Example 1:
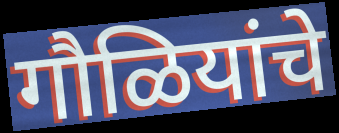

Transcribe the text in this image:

गौळियांचे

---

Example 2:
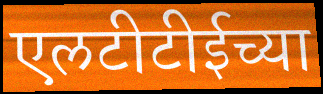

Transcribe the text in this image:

एलटीटीईच्या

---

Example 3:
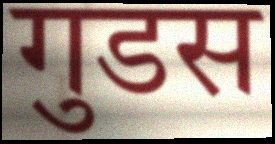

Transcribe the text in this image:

गुडस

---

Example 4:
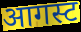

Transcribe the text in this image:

आगस्ट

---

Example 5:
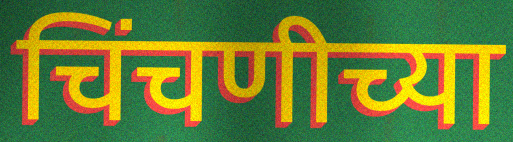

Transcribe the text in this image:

चिंचणीच्या